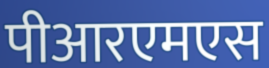
पीआरएमएस